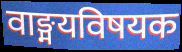
वाङ्मयविषयक